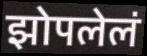
झोपलेलं